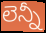
లెన్నీ